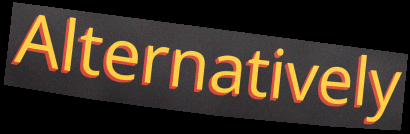
Alternatively